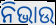
ନିଭାଉ